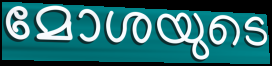
മോശയുടെ